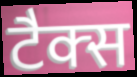
टैक्‍स